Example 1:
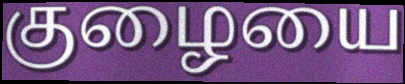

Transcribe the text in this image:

குழையை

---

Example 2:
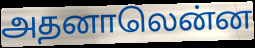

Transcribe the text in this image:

அதனாலென்ன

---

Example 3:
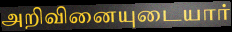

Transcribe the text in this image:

அறிவினையுடையார்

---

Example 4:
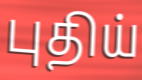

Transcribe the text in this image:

புதிய்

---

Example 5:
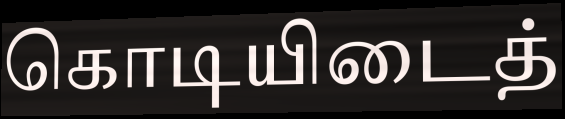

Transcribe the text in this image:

கொடியிடைத்